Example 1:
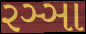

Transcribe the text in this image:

રઞ્ઞા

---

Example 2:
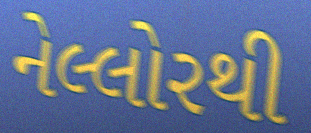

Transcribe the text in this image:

નેલ્લોરથી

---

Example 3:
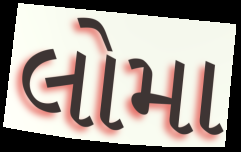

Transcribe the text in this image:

લોમા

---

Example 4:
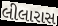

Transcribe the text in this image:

લીલારાસ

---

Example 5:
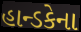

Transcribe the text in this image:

હાન્ડકેના